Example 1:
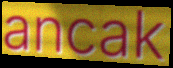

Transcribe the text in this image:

ancak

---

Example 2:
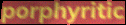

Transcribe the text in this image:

porphyritic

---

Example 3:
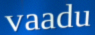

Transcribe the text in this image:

vaadu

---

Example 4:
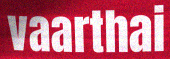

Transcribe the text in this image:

vaarthai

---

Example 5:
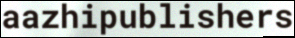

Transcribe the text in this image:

aazhipublishers